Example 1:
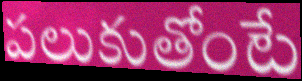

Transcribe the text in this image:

పలుకుతోంటే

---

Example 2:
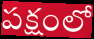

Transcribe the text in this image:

పక్షంలో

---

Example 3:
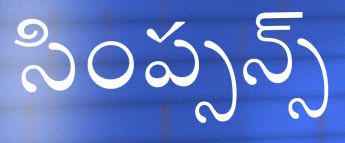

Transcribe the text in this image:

సింప్సన్స్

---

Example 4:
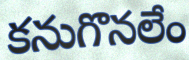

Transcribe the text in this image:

కనుగొనలేం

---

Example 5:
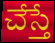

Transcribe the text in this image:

చేస్తే